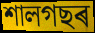
শালগছৰ